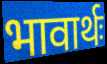
भावार्थः